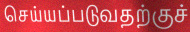
செய்யப்படுவதற்குச்